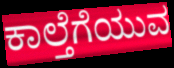
ಕಾಲ್ತೆಗೆಯುವ